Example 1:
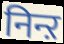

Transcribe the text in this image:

निन्ऱ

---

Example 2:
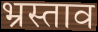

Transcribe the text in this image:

भ्रस्ताव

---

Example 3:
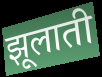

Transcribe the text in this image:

झूलाती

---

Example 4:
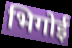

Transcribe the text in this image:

भिगोई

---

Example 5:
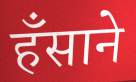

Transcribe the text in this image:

हँसाने